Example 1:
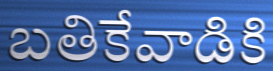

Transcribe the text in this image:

బతికేవాడికి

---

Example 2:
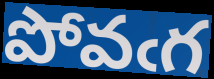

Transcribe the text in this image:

పోవఁగ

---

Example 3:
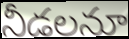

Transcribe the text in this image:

నీడలనూ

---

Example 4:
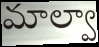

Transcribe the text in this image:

మాల్వా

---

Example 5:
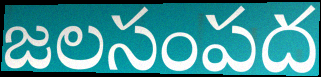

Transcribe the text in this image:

జలసంపద